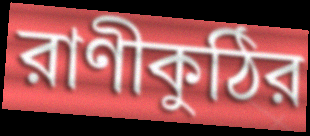
রাণীকুঠির